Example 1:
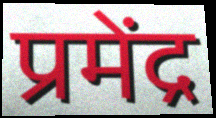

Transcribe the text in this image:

प्रमेंद्र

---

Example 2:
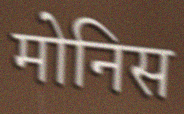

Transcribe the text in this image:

मोनिस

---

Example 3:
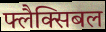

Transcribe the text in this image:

फ्लैक्सिबल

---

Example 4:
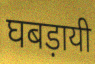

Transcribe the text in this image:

घबड़ायी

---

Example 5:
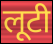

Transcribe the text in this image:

लूटी